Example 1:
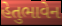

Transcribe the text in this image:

હેતુભાવેન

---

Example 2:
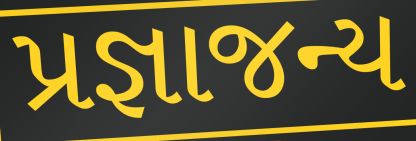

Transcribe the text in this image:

પ્રજ્ઞાજન્ય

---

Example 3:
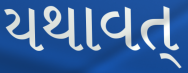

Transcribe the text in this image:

યથાવત્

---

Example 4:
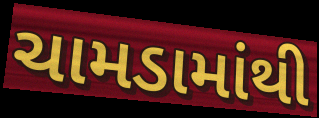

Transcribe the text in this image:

ચામડામાંથી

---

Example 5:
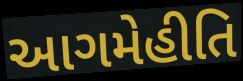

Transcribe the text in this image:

આગમેહીતિ